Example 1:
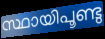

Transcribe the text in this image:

സ്ഥായിപൂണ്ടു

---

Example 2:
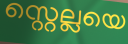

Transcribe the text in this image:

സ്റ്റെല്ലയെ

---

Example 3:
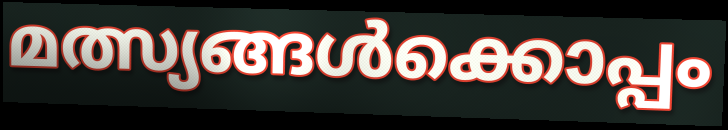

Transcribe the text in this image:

മത്സ്യങ്ങൾക്കൊപ്പം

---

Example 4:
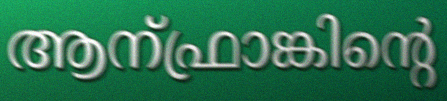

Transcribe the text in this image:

ആന്ഫ്രാങ്കിന്റെ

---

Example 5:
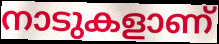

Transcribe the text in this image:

നാടുകളാണ്